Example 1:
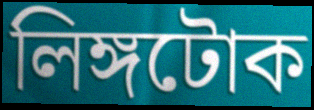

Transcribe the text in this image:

লিঙ্গটোক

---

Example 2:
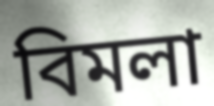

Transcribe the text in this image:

বিমলা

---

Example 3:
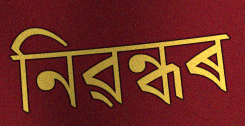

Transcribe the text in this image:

নিৱন্ধৰ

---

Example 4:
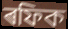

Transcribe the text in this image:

ৰফিক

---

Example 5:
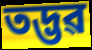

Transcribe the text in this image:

তদ্ভৱ